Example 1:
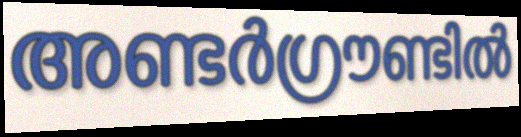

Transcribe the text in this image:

അണ്ടർഗ്രൗണ്ടിൽ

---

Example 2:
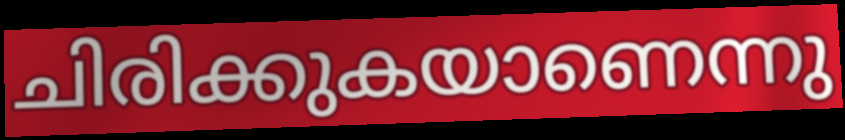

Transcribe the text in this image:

ചിരിക്കുകയാണെന്നു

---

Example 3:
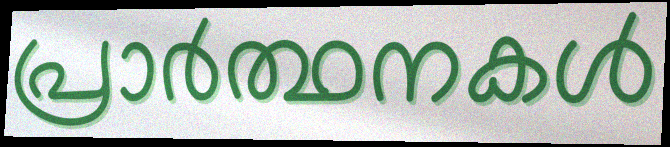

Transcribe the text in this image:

പ്രാർത്ഥനകൾ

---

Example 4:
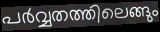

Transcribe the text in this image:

പർവ്വതത്തിലെങ്ങും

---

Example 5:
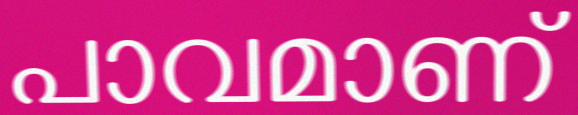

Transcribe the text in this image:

പാവമാണ്